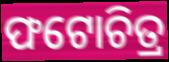
ଫଟୋଚିତ୍ର